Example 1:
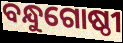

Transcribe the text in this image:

ବନ୍ଧୁଗୋଷ୍ଠୀ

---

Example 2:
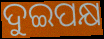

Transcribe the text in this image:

ଦୁଇପକ୍ଷ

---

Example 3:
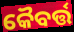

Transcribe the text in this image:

କୈବର୍ତ୍ତ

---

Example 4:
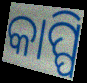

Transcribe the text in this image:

କାପ୍ପି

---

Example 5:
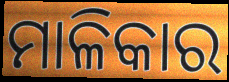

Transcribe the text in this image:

ମାଳିକାର